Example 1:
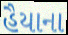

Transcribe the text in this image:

હૈયાના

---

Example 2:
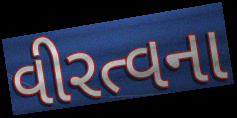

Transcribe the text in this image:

વીરત્વના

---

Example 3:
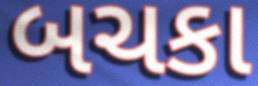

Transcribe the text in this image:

બચકા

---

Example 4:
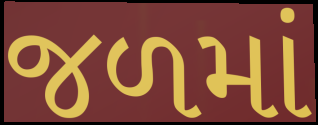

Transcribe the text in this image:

જળમાં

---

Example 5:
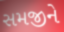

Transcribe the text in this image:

સમજીને